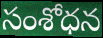
సంశోధన